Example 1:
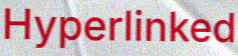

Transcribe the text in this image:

Hyperlinked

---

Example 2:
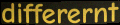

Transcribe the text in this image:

differernt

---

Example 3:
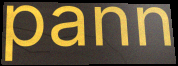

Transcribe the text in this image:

pann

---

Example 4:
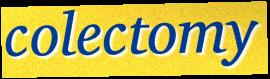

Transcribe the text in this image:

colectomy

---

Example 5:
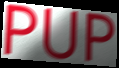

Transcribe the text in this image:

PUP